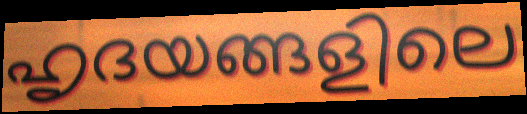
ഹൃദയങ്ങളിലെ